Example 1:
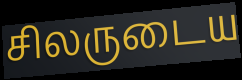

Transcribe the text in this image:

சிலருடைய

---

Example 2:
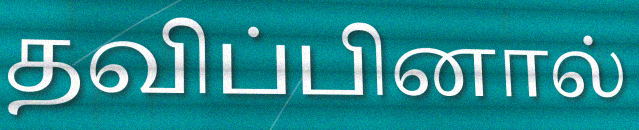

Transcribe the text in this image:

தவிப்பினால்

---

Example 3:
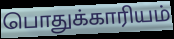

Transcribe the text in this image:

பொதுக்காரியம்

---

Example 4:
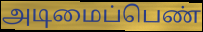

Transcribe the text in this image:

அடிமைப்பெண்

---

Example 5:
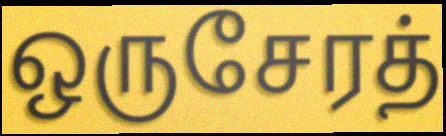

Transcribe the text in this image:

ஒருசேரத்